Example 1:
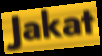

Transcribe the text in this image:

Jakat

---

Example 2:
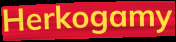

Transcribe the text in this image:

Herkogamy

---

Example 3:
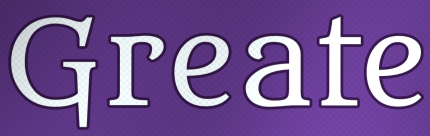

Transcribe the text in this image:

Greate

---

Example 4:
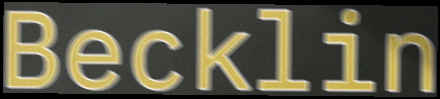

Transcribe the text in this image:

Becklin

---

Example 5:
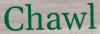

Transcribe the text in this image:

Chawl